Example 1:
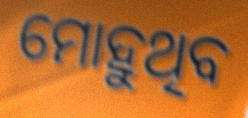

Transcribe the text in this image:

ମୋହୁଥିବ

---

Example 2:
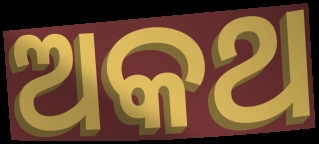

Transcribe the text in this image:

ଅକଥ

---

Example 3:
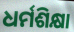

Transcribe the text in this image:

ଧର୍ମଶିକ୍ଷା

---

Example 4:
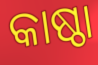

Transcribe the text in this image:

କାଷ୍ଠା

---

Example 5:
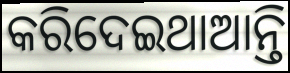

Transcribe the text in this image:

କରିଦେଇଥାଆନ୍ତି